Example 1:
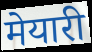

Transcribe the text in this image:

मेयारी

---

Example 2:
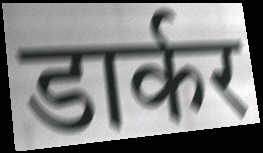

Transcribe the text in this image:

डार्कर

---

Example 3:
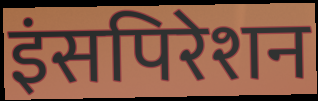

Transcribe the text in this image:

इंसपिरेशन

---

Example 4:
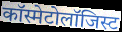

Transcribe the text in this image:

कॉस्मेटोलॉजिस्ट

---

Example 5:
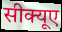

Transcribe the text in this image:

सीक्यूए